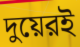
দুয়েরই